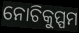
ନୋଚିକୁପ୍ପମ